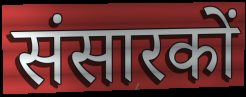
संसारकों